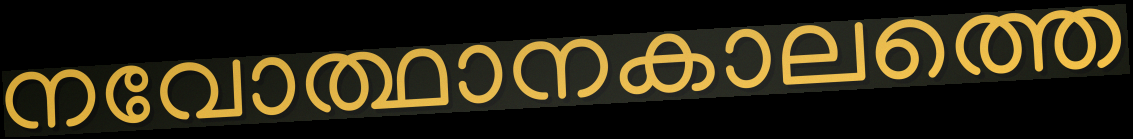
നവോത്ഥാനകാലത്തെ